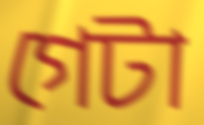
গেটা